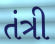
તંત્રી